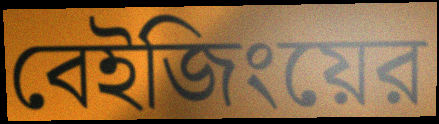
বেইজিংয়ের